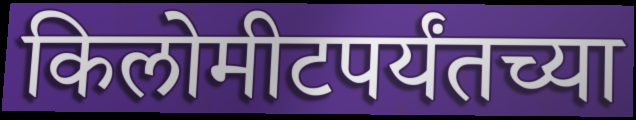
किलोमीटपर्यंतच्या